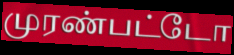
முரண்பட்டோ